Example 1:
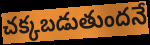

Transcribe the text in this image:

చక్కబడుతుందనే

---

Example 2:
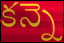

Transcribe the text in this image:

కన్నె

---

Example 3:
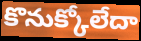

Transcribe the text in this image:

కొనుక్కోలేదా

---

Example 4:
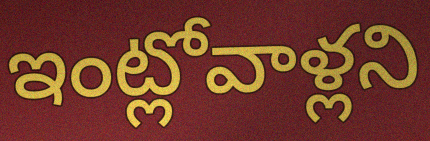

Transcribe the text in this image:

ఇంట్లోవాళ్లని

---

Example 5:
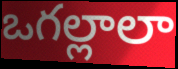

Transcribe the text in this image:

ఒగల్లాలా